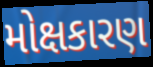
મોક્ષકારણ